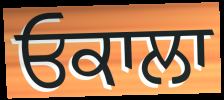
ਓਕਾਲਾ